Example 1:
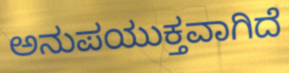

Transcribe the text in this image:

ಅನುಪಯುಕ್ತವಾಗಿದೆ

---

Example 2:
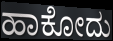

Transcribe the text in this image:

ಹಾಕೋದು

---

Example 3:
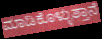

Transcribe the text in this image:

ಮಾಡಿಕೊಳ್ಳುತ್ತಾನೆ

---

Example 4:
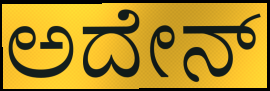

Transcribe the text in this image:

ಅದೇನ್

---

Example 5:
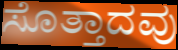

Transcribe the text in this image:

ಸೊತ್ತಾದವು